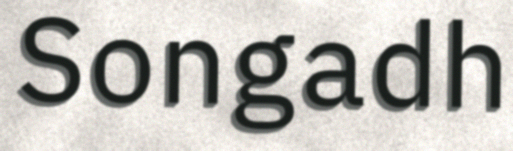
Songadh